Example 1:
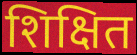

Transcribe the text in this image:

शिक्षित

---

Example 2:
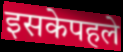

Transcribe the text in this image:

इसकेपहले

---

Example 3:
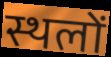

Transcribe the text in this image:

स्थलों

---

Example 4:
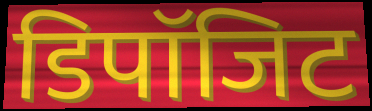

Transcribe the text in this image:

डिपॉजिट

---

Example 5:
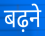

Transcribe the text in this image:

बढ़ने